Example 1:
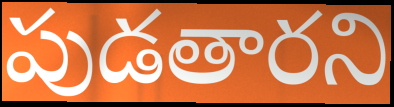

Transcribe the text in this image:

పుడతారని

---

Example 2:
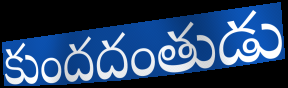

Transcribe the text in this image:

కుందదంతుడు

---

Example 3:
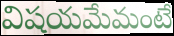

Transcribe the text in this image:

విషయమేమంటే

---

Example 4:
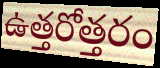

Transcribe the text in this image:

ఉత్తరోత్తరం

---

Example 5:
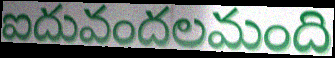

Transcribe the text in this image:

ఐదువందలమంది